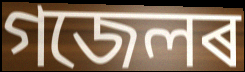
গজেলৰ